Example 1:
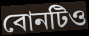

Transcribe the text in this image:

বোনটিও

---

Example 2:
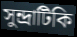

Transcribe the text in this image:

সুন্দ্রাটিকি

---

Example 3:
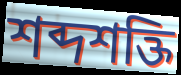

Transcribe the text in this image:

শব্দশক্তি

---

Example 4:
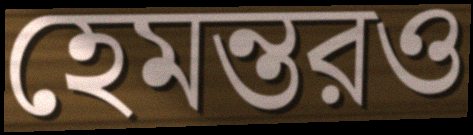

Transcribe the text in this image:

হেমন্তরও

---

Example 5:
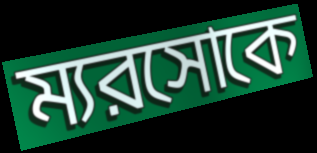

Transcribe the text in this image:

ম্যরসোকে